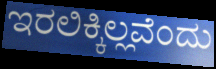
ಇರಲಿಕ್ಕಿಲ್ಲವೆಂದು